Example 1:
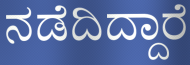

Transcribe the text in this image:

ನಡೆದಿದ್ದಾರೆ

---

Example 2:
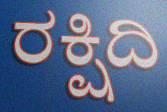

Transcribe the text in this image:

ರಕ್ಷಿದಿ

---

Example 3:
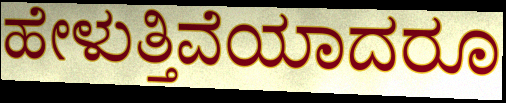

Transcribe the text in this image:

ಹೇಳುತ್ತಿವೆಯಾದರೂ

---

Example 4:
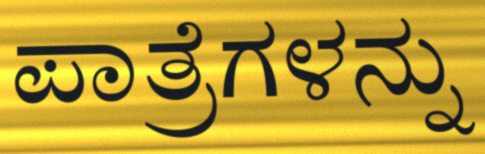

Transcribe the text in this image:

ಪಾತ್ರೆಗಳನ್ನು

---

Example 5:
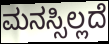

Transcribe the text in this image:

ಮನಸ್ಸಿಲ್ಲದೆ